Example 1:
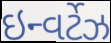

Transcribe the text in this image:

ઇન્વર્ટેઝ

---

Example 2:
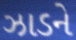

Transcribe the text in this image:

ઝાડને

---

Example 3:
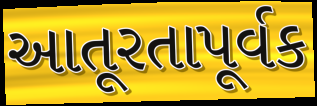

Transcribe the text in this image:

આતૂરતાપૂર્વક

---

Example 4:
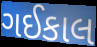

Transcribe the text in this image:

ગઈકાલ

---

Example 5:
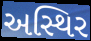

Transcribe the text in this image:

અસ્થિર